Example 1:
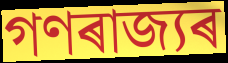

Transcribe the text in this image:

গণৰাজ্যৰ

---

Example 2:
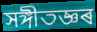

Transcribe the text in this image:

সঙ্গীতজ্ঞৰ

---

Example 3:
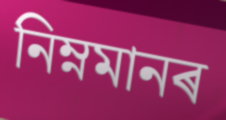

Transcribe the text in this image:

নিম্নমানৰ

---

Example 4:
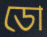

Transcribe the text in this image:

ডো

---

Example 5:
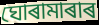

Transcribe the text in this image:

ঘোৰামাৰাৰ